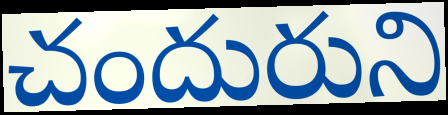
చందురుని